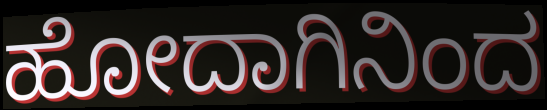
ಹೋದಾಗಿನಿಂದ